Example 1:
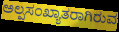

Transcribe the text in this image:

ಅಲ್ಪಸಂಖ್ಯಾತರಾಗಿರುವ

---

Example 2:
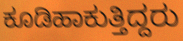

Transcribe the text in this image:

ಕೂಡಿಹಾಕುತ್ತಿದ್ದರು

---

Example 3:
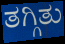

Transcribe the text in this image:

ತಗ್ಗಿತು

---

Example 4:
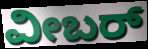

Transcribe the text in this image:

ವೀಬರ್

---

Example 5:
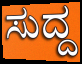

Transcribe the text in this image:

ಸುದ್ದ